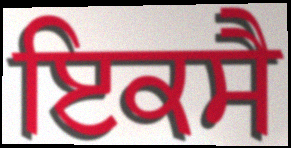
ਇਕਸੈ